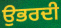
ਉਭਰਦੀ